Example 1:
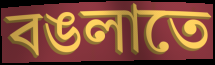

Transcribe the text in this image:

বঙলাতে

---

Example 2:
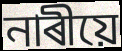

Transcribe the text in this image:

নাৰীয়ে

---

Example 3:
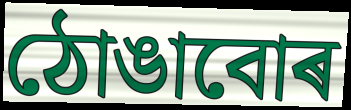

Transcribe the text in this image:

ঠোঙাবোৰ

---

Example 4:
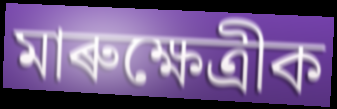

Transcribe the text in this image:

মাৰুক্ষেত্ৰীক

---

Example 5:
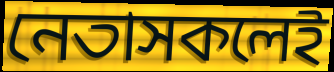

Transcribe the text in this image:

নেতাসকলেই